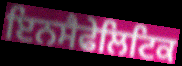
ਇਨਸੈਫੇਲਿਟਿਕ